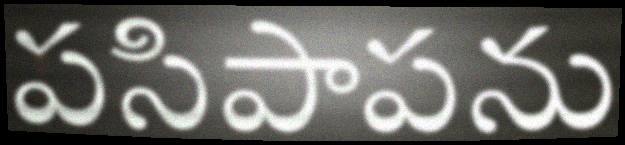
పసిపాపను